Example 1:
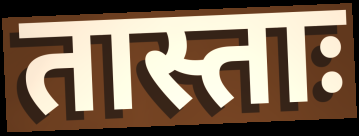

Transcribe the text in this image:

तास्ताः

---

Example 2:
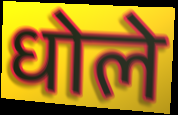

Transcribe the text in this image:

धोले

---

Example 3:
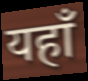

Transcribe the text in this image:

यहाँ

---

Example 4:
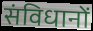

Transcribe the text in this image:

संविधानों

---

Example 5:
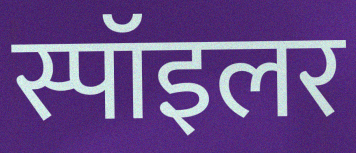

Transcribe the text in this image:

स्पॉइलर